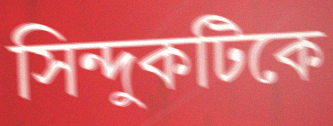
সিন্দুকটিকে